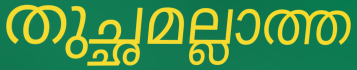
തുച്ഛമല്ലാത്ത